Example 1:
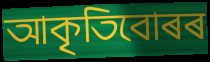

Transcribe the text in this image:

আকৃতিবোৰৰ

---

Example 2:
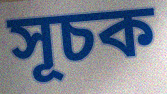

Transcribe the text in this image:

সূচক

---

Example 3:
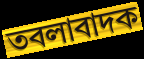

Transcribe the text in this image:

তবলাবাদক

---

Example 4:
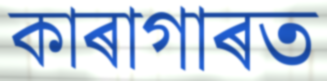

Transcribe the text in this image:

কাৰাগাৰত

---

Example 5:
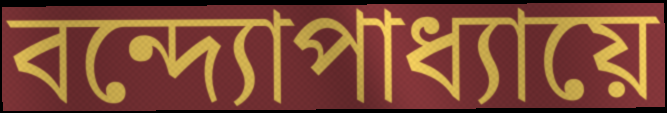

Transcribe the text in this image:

বন্দ্যোপাধ্যায়ে